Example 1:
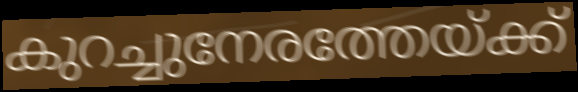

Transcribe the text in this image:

കുറച്ചുനേരത്തേയ്ക്ക്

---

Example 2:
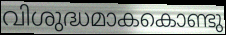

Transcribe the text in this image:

വിശുദ്ധമാകകൊണ്ടു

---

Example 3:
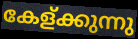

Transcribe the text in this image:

കേള്ക്കുന്നു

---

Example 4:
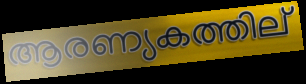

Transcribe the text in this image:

ആരണ്യകത്തില്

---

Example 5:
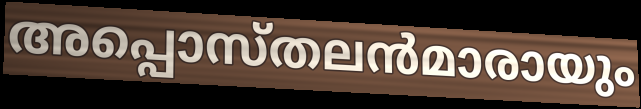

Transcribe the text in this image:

അപ്പൊസ്തലൻമാരായും